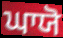
ਘਾਯੋ